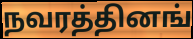
நவரத்தினங்